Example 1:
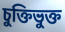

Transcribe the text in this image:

চুক্তিভুক্ত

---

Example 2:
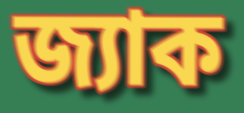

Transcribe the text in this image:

জ্যাক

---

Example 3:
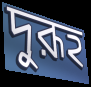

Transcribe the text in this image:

দুরূহ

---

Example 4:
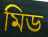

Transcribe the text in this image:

মিড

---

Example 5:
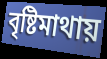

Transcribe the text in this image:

বৃষ্টিমাথায়